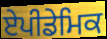
ਏਪੀਡੇਮਿਕ